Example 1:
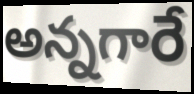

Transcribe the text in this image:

అన్నగారే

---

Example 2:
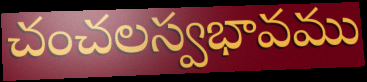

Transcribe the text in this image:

చంచలస్వభావము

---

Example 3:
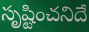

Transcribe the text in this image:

సృష్టించనిదే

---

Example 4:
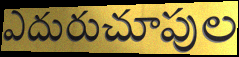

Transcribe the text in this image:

ఎదురుచూపుల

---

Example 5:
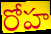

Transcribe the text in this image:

రోహ